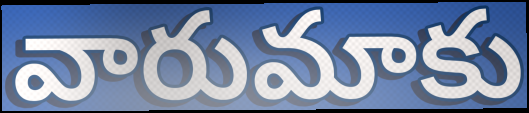
వారుమాకు